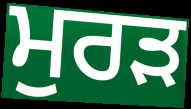
ਮੁਰੜ